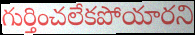
గుర్తించలేకపోయారని